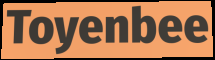
Toyenbee